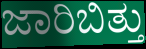
ಜಾರಿಬಿತ್ತು